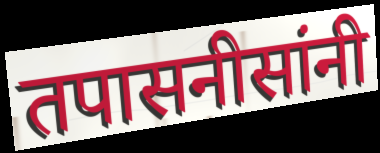
तपासनीसांनी